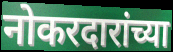
नोकरदारांच्या